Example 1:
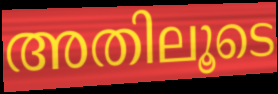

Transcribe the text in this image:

അതിലൂടെ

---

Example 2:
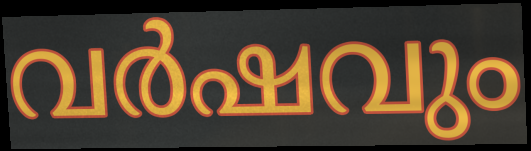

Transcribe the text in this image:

വർഷവും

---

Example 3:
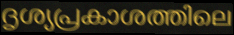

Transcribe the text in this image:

ദൃശ്യപ്രകാശത്തിലെ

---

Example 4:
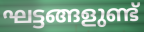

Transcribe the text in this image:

ഘട്ടങ്ങളുണ്ട്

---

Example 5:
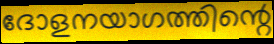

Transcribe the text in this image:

ദോളനയാഗത്തിന്റെ